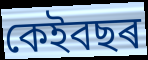
কেইবছৰ